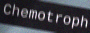
Chemotroph